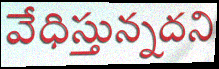
వేధిస్తున్నదని